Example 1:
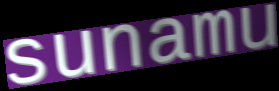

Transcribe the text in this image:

sunamu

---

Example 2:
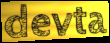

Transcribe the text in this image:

devta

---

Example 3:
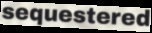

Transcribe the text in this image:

sequestered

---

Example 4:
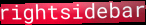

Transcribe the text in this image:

rightsidebar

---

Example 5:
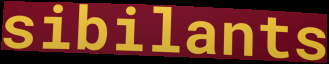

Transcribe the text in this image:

sibilants